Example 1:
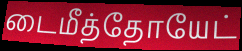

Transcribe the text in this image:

டைமீத்தோயேட்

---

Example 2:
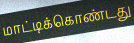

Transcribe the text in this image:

மாட்டிக்கொண்டது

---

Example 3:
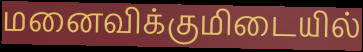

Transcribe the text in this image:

மனைவிக்குமிடையில்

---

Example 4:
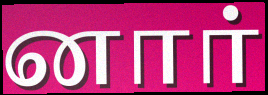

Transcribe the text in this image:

னார்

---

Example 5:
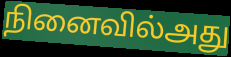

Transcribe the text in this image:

நினைவில்அது